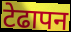
टेढापन